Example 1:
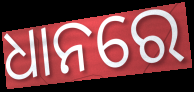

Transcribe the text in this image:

ଧାନରେ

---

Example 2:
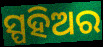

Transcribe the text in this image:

ସ୍ପହିଅର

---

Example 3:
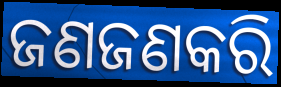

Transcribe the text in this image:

ଜଣଜଣକରି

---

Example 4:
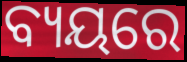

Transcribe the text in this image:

ବ୍ୟୟରେ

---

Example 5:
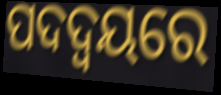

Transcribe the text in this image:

ପଦଦ୍ୱୟରେ